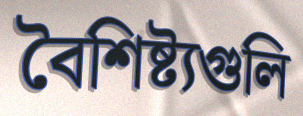
বৈশিষ্ট্যগুলি